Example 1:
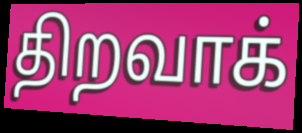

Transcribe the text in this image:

திறவாக்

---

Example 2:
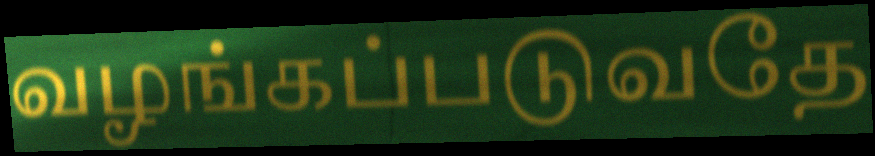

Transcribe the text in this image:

வழங்கப்படுவதே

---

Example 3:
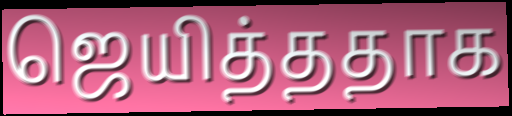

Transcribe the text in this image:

ஜெயித்ததாக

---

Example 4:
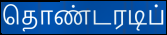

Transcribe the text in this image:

தொண்டரடிப்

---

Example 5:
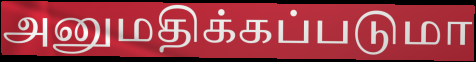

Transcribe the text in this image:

அனுமதிக்கப்படுமா